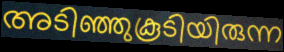
അടിഞ്ഞുകൂടിയിരുന്ന